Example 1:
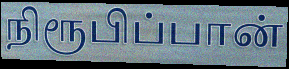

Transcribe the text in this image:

நிரூபிப்பான்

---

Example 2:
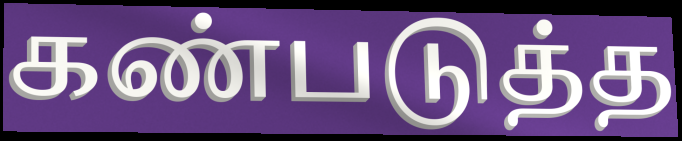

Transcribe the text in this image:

கண்படுத்த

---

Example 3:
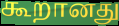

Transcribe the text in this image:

கூறானது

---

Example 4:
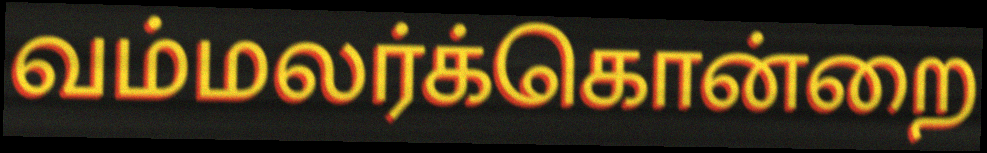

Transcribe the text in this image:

வம்மலர்க்கொன்றை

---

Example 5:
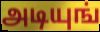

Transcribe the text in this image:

அடியுங்